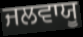
ਜਲਵਾਯੂ